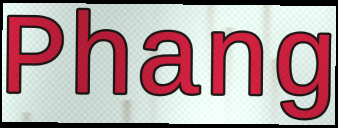
Phang